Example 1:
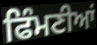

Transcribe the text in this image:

ਫਿੰਮਣੀਆਂ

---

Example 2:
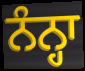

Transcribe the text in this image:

ਨੰਨ੍ਹਾ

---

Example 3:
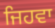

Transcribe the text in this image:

ਜਿਹਵਾ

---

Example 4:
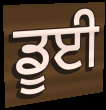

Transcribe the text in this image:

ਡੂਈ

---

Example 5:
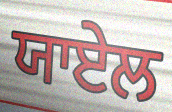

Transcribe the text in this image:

ਯਾਏਲ